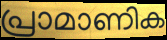
പ്രാമാണിക